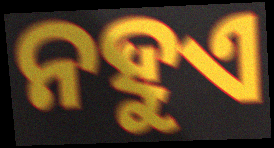
ନହୁଏ